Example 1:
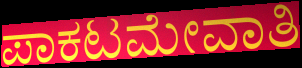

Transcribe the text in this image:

ಪಾಕಟಮೇವಾತಿ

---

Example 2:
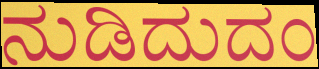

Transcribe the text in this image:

ನುಡಿದುದಂ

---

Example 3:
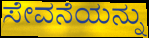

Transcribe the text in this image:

ಸೇವನೆಯನ್ನು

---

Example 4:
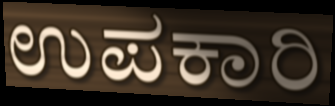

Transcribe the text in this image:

ಉಪಕಾರಿ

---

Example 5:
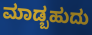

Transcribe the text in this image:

ಮಾಡ್ಬಹುದು